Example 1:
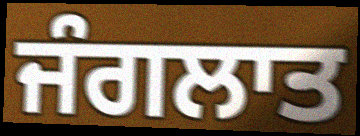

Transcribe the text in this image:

ਜੰਗਲਾਤ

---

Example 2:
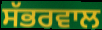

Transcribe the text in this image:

ਸੱਭਰਵਾਲ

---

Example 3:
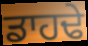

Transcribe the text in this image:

ਡਾਹਢੇ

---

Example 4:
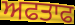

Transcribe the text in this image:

ਅਫਤਾਫ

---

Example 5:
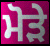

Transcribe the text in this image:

ਮੋੜੇ